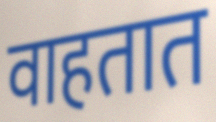
वाहतात